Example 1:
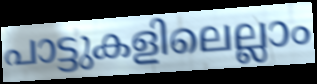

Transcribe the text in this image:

പാട്ടുകളിലെല്ലാം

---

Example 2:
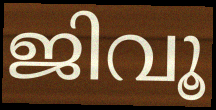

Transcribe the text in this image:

ജിവൂ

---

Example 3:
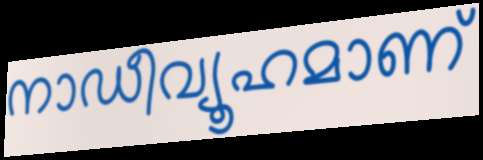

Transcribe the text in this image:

നാഡീവ്യൂഹമാണ്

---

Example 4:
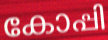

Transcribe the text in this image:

കോപ്പി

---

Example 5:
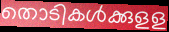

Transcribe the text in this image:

തൊടികൾക്കുളള